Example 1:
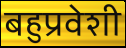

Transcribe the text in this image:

बहुप्रवेशी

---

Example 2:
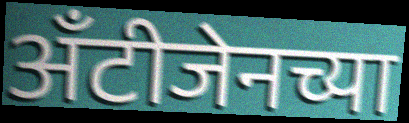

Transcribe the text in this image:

अँटीजेनच्या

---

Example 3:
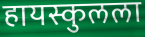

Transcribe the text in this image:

हायस्कुलला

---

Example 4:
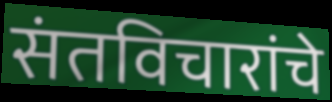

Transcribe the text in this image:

संतविचारांचे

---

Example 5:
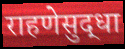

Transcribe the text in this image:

राहणेसुद्धा